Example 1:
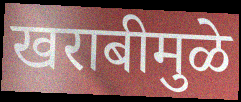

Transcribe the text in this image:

खराबीमुळे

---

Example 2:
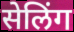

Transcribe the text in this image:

सेलिंग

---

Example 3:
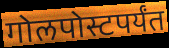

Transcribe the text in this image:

गोलपोस्टपर्यंत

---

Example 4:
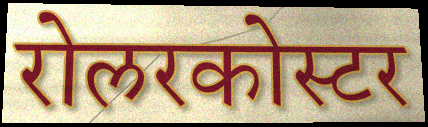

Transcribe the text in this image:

रोलरकोस्टर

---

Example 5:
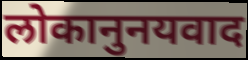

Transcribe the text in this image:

लोकानुनयवाद